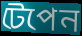
টেপেন